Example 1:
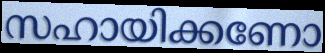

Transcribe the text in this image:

സഹായിക്കണോ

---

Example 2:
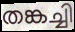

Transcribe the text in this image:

തങ്കച്ചി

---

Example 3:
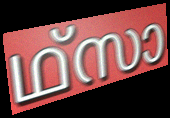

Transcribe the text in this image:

ഥ്സാ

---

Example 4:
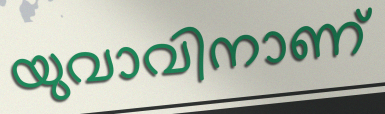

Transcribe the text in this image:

യുവാവിനാണ്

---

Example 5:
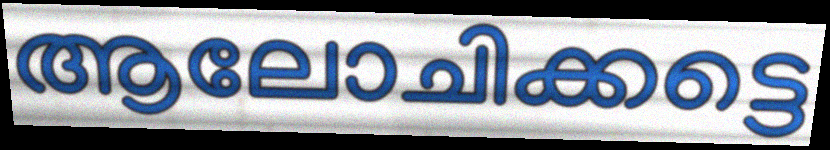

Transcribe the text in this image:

ആലോചിക്കട്ടെ